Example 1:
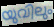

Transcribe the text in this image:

യുവിലും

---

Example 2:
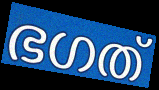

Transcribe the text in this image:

ഭഗത്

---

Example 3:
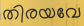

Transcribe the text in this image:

തിരയവേ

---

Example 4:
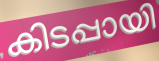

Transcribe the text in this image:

കിടപ്പായി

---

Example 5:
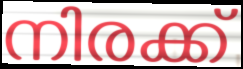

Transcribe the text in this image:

നിരക്ക്